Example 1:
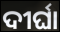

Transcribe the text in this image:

ଦୀର୍ଘା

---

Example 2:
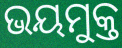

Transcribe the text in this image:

ଭୟମୁକ୍ତ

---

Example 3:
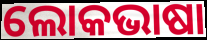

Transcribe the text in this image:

ଲୋକଭାଷା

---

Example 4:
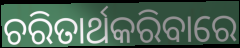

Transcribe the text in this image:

ଚରିତାର୍ଥକରିବାରେ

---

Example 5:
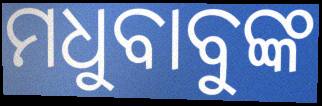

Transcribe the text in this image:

ମଧୁବାବୁଙ୍କ